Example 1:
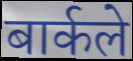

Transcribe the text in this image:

बार्कले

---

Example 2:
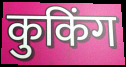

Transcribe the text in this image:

कुकिंग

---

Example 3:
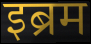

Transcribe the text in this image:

इब्रम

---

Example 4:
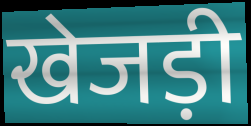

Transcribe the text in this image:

खेजड़ी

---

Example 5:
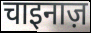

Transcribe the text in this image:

चाइनाज़